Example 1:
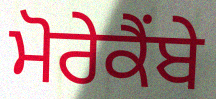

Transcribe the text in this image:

ਮੋਰੇਕੈਂਬੇ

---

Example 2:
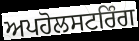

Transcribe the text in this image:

ਅਪਹੋਲਸਟਰਿੰਗ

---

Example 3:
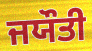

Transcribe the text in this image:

ਜਯੌਤੀ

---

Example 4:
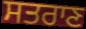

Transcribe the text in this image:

ਸਤਰਾਣ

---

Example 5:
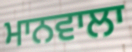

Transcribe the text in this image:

ਮਾਨਵਾਲਾ